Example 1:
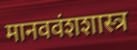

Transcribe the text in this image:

मानववंशशास्त्र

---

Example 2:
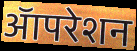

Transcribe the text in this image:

ॲापरेशन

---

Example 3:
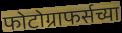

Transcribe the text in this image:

फोटोग्राफर्सच्या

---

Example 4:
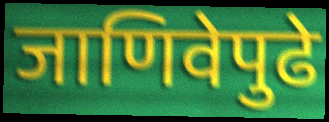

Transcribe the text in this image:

जाणिवेपुढे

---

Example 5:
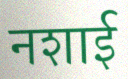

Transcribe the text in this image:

नशाई